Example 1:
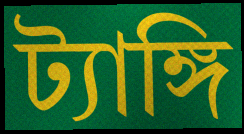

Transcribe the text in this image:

ট্যাঙ্গি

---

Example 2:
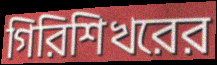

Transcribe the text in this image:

গিরিশিখরের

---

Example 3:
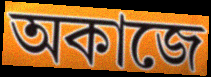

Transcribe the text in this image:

অকাজে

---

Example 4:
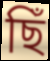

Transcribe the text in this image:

ছিঁ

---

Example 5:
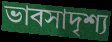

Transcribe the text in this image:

ভাবসাদৃশ্য